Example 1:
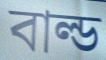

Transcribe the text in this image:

বাল্ড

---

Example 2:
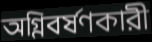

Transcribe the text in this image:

অগ্নিবর্ষণকারী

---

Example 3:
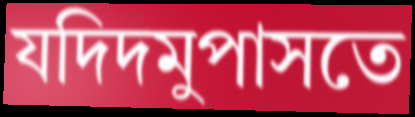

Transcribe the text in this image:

যদিদমুপাসতে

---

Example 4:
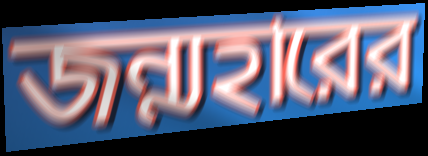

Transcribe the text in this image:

জন্মহারের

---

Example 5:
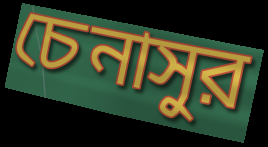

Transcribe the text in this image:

চেনাসুর